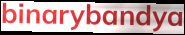
binarybandya